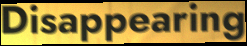
Disappearing